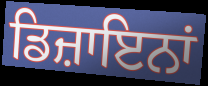
ਡਿਜ਼ਾਇਨਾਂ